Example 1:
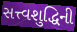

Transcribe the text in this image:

સત્ત્વશુદ્ધિની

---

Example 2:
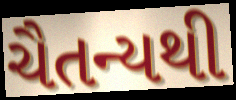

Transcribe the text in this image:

ચૈતન્યથી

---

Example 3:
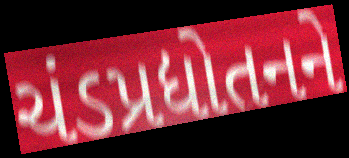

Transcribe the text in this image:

ચંડપ્રદ્યોતનને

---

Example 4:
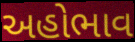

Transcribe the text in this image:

અહોભાવ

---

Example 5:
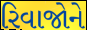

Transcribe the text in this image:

રિવાજોને